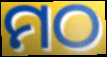
ମଠ